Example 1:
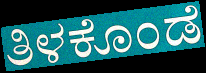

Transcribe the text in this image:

ತಿಳಕೊಂಡೆ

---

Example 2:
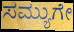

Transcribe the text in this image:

ಸಮ್ಯುಗೇ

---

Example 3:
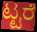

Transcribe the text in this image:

ಟ್ಟರೆ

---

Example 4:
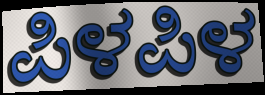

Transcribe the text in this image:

ಪಿಳಪಿಳ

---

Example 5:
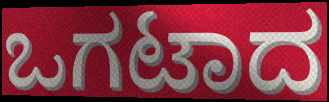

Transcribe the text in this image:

ಒಗಟಾದ